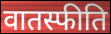
वातस्फीति